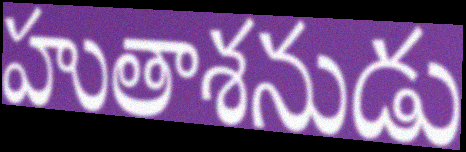
హుతాశనుడు